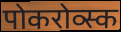
पोकरोव्स्क